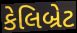
કેલિબ્રેટ